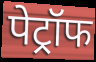
पेट्रॉफ